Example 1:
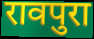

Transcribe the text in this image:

रावपुरा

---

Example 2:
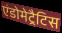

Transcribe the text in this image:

एंडोमेट्रैटिस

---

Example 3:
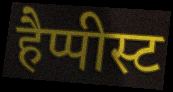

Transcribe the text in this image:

हैप्पीस्ट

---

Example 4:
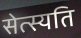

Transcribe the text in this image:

सेत्स्यति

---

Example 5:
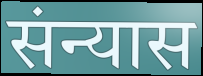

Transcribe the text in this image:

संन्यास